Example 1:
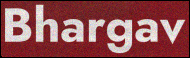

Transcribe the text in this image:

Bhargav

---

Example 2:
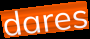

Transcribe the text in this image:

dares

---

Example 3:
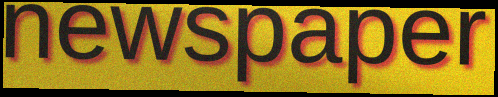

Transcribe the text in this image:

newspaper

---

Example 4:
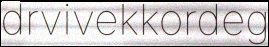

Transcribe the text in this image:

drvivekkordeg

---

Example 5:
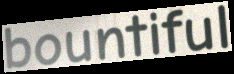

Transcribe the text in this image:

bountiful